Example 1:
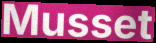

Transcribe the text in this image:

Musset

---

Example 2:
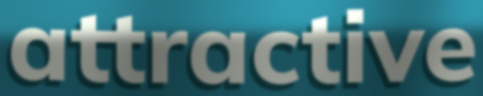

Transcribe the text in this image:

attractive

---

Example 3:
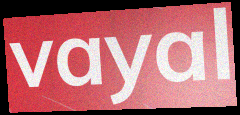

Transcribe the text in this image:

vayal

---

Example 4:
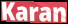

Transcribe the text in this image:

Karan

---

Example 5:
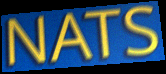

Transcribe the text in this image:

NATS